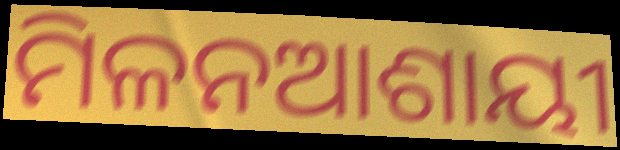
ମିଳନଆଶାୟୀ